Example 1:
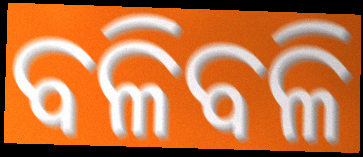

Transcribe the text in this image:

ବଳିବଳି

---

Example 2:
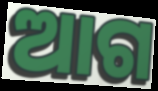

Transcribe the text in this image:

ଆଗ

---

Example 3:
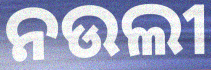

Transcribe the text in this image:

ନଉଲୀ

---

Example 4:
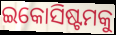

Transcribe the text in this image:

ଇକୋସିଷ୍ଟମକୁ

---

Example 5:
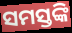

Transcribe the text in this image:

ସମସ୍ତଙ୍କି